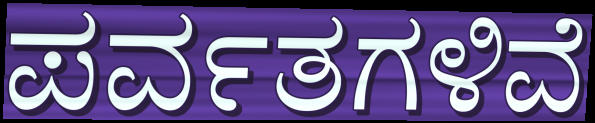
ಪರ್ವತಗಳಿವೆ